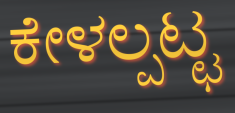
ಕೇಳಲ್ಪಟ್ಟ